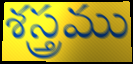
శస్త్రము